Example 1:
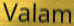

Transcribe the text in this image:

Valam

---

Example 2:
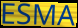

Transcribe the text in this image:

ESMA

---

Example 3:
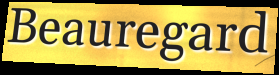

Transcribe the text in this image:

Beauregard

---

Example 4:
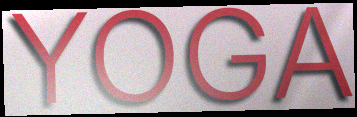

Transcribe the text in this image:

YOGA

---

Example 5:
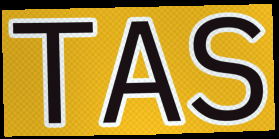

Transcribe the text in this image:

TAS